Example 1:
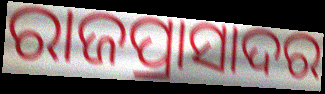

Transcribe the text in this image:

ରାଜପ୍ରାସାଦର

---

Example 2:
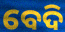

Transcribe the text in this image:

ବେଦି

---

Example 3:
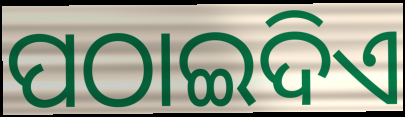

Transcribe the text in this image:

ପଠାଇଦିଏ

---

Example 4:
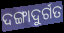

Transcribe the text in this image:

ଦଙ୍ଗାଦୁର୍ଗତ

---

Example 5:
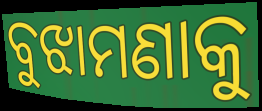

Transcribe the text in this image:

ବୁଝାମଣାକୁ